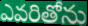
ఎవరితోను